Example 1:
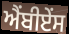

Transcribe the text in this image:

ਐਂਬੀਏਂਸ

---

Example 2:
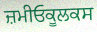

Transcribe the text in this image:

ਜ਼ਮੀਓਕੂਲਕਸ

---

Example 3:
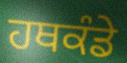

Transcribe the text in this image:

ਹਥਕੰਡੇ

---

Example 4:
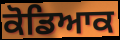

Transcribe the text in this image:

ਕੋਡਿਆਕ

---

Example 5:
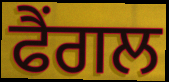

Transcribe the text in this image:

ਫੈਂਗਲ